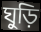
ঘুড়ি